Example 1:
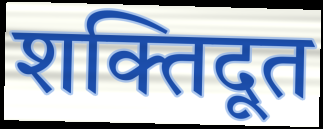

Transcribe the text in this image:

शक्तिदूत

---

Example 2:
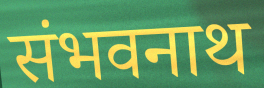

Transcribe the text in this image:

संभवनाथ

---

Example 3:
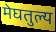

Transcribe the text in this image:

मेघतुल्य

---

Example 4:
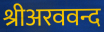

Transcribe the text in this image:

श्रीअरववन्द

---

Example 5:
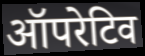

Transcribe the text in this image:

ऑपरेटिव